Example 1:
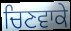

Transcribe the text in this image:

ਚਿਣਵਾਕੇ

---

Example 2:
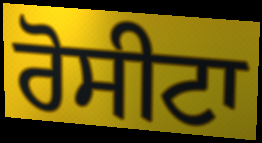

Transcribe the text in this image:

ਰੋਸੀਟਾ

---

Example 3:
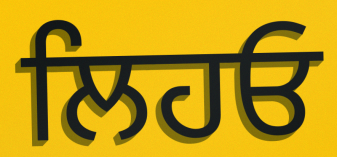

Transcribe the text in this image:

ਲਿਹਓ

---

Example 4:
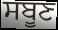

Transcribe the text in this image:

ਸਬੂਣ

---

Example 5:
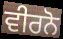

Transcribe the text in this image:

ਵੀਰਨੋ